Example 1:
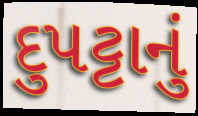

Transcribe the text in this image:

દુપટ્ટાનું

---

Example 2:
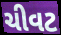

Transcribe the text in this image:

ચીવટ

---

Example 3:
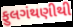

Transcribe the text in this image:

ફુલગંથણીથી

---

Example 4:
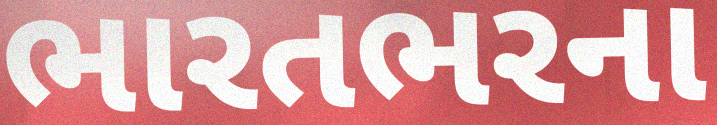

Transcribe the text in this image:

ભારતભરના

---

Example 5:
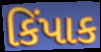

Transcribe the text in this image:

કિંપાક